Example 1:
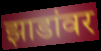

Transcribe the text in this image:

झाडांवर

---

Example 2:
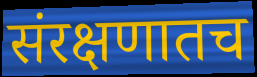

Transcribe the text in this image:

संरक्षणातच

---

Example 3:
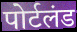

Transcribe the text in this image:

पोर्टलंड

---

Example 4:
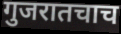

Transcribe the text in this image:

गुजरातचाच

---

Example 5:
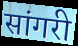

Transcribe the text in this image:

सांगरी